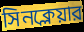
সিনক্লেয়ার